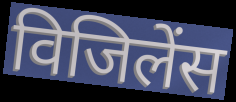
विजिलेंस